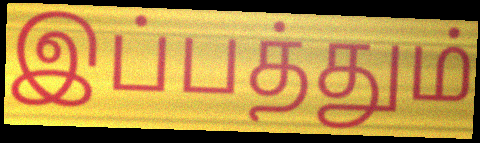
இப்பத்தும்